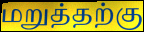
மறுத்தற்கு